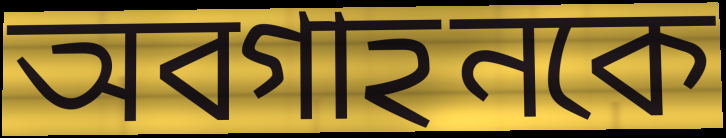
অবগাহনকে